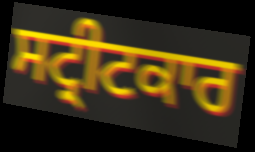
ਸਟ੍ਰੀਟਕਾਰ